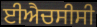
ਈਐਚਸੀਸੀ